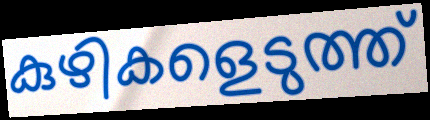
കുഴികളെടുത്ത്